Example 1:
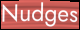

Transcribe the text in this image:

Nudges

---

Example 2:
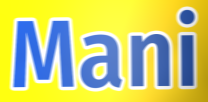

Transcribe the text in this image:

Mani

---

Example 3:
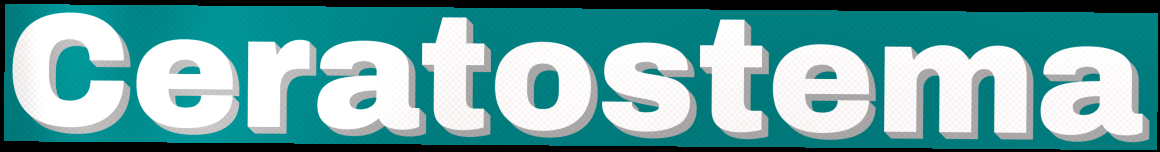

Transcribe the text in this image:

Ceratostema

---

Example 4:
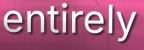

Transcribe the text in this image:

entirely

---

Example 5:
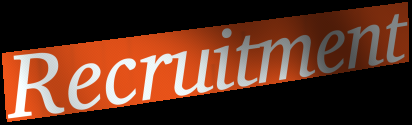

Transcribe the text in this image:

Recruitment